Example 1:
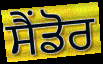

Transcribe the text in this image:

ਸੈਂਡੋਰ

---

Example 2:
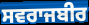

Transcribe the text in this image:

ਸਵਰਾਜਬੀਰ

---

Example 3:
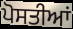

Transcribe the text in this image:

ਪੋਸਤੀਆਂ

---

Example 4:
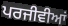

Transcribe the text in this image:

ਪਰਜੀਵੀਆਂ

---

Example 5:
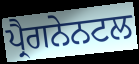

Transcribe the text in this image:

ਪ੍ਰੈਗਨੇਨਟਲ